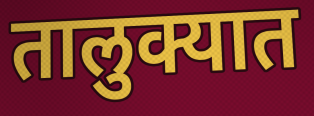
तालुक्यात